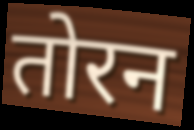
तोरन